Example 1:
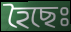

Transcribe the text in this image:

হৈছেঃ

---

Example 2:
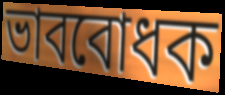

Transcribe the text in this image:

ভাববোধক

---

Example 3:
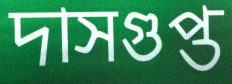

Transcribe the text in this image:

দাসগুপ্ত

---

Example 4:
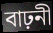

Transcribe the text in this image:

বাঢ়নী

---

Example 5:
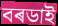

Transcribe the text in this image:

বৰডাই